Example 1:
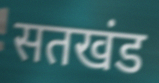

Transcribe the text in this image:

सतखंड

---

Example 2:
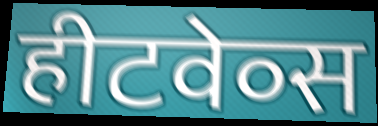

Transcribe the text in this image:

हीटवेव्स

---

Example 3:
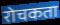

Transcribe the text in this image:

रोचकता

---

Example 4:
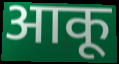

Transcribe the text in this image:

आकू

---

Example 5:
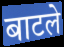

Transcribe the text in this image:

बाटले